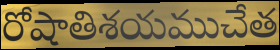
రోషాతిశయముచేత